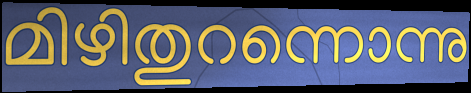
മിഴിതുറന്നൊന്നു